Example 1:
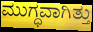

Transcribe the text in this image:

ಮುಗ್ಧವಾಗಿತ್ತು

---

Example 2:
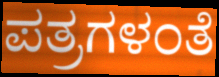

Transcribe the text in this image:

ಪತ್ರಗಳಂತೆ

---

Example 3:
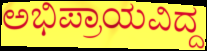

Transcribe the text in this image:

ಅಭಿಪ್ರಾಯವಿದ್ದ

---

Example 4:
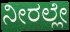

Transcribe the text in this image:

ನೀರಲ್ಲೇ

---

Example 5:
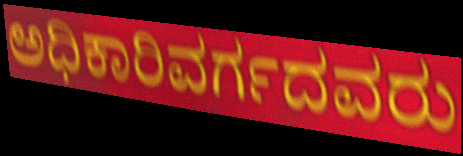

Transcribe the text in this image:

ಅಧಿಕಾರಿವರ್ಗದವರು